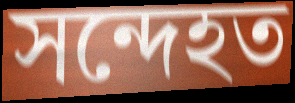
সন্দেহত